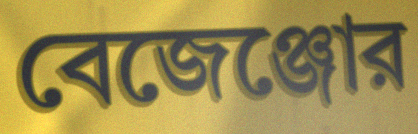
বেজেঞ্জোর